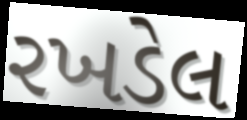
રખડેલ